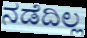
ನಡೆದಿಲ್ಲ